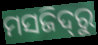
ମସଜିଦ୍‌ରୁ